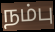
நம்பு